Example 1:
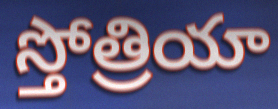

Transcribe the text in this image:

స్తోత్రియా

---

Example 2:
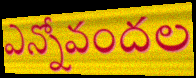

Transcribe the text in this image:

ఎన్నోవందల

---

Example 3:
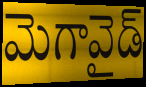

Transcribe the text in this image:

మెగావైడ్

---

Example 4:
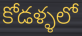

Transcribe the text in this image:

కోడళ్ళలో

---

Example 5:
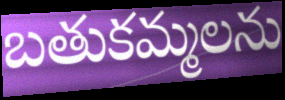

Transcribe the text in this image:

బతుకమ్మలను